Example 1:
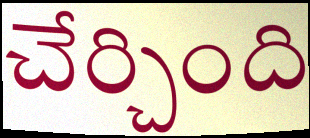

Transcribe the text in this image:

చేర్చింది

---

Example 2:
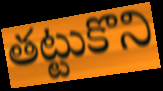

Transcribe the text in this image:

తట్టుకొని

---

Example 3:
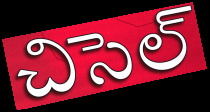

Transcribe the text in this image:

చిసెల్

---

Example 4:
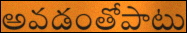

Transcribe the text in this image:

అవడంతోపాటు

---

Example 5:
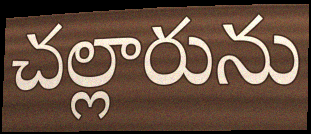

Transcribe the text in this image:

చల్లారును